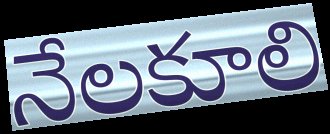
నేలకూలి